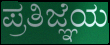
ಪ್ರತಿಜ್ಞೆಯ